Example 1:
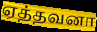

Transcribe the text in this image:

ஏத்தவனா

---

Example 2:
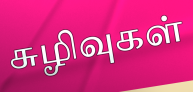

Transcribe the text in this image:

சுழிவுகள்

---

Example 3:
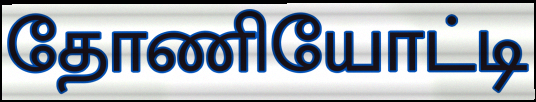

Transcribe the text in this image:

தோணியோட்டி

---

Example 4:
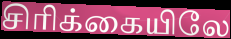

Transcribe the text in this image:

சிரிக்கையிலே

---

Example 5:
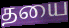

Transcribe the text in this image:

தயை